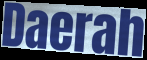
Daerah